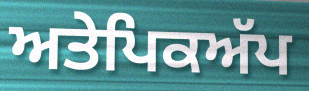
ਅਤੇਪਿਕਅੱਪ